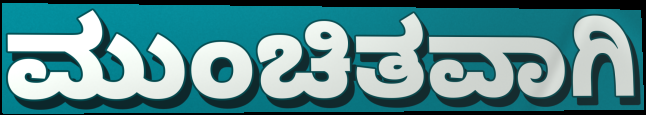
ಮುಂಚಿತವಾಗಿ